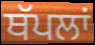
ਥੱਪਲਾਂ